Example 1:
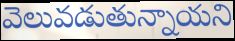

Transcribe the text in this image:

వెలువడుతున్నాయని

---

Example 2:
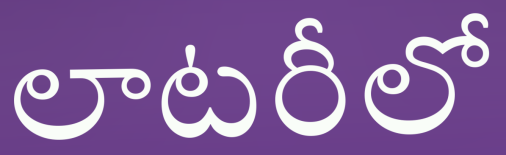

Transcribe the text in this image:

లాటరీలో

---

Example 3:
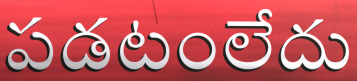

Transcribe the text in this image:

పడటంలేదు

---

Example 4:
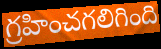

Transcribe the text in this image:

గ్రహించగలిగింది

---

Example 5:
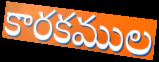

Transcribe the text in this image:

కారకముల